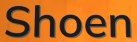
Shoen